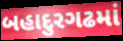
બહાદુરગઢમાં